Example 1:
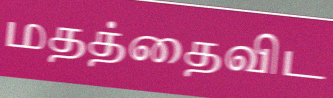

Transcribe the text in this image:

மதத்தைவிட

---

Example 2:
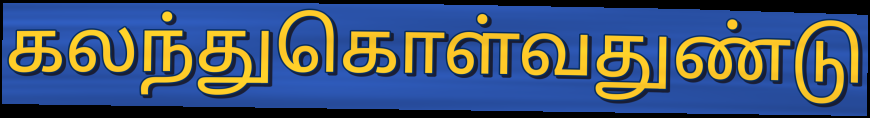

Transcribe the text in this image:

கலந்துகொள்வதுண்டு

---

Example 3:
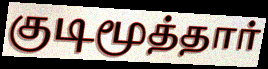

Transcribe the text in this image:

குடிமூத்தார்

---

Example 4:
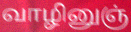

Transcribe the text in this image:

வாழினுஞ்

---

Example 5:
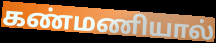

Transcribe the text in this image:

கண்மணியால்